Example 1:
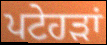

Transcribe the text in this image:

ਪਟੇਹੜਾਂ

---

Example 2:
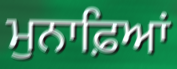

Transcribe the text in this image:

ਮੁਨਾਫ਼ਿਆਂ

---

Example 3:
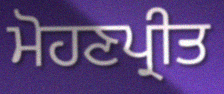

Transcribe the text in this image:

ਮੋਹਣਪ੍ਰੀਤ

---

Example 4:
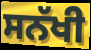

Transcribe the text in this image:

ਸਨੱਖੀ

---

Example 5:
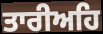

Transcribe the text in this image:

ਤਾਰੀਅਹਿ